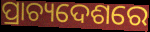
ପ୍ରାଚ୍ୟଦେଶରେ